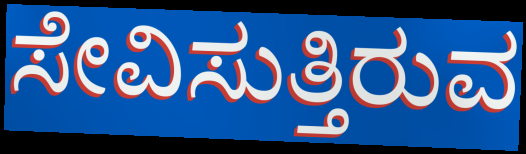
ಸೇವಿಸುತ್ತಿರುವ